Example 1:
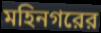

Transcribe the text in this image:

মহিনগরের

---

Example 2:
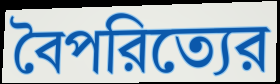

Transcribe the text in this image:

বৈপরিত্যের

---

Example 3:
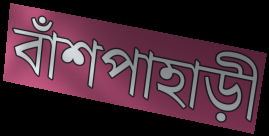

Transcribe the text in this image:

বাঁশপাহাড়ী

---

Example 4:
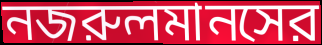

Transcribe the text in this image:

নজরুলমানসের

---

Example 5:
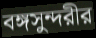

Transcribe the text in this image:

বঙ্গসুন্দরীর